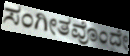
ಸಂಗೀತವೊಂದೇ